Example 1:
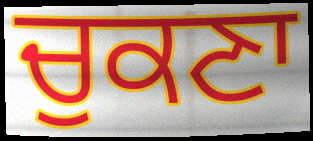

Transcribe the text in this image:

ਚੁਕਣਾ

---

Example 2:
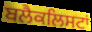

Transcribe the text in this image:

ਬਲੈਕਲਿਸਟਾਂ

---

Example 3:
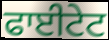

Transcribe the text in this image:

ਫਾਈਟੇਟ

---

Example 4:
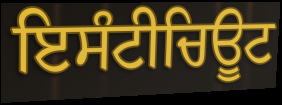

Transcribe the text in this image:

ਇਸੰਟੀਚਿਊਟ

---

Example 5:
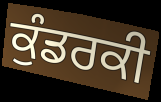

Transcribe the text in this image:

ਕੁੰਡਰਕੀ